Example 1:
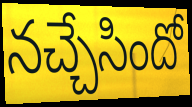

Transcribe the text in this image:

నచ్చేసిందో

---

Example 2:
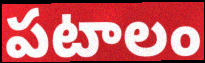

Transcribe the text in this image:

పటాలం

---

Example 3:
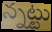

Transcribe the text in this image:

న్నట్టు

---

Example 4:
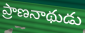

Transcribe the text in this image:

ప్రాణనాథుడు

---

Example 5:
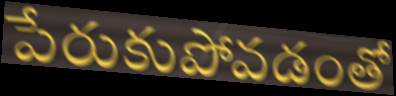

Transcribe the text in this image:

పేరుకుపోవడంతో